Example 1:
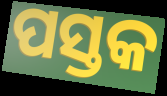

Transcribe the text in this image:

ପସ୍ତକ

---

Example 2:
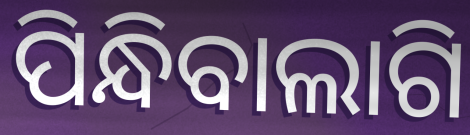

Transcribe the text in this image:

ପିନ୍ଧିବାଲାଗି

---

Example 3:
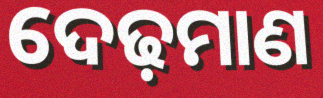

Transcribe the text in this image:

ଦେଢ଼ମାଣ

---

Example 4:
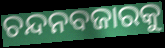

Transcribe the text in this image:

ଚନ୍ଦନବଜାରକୁ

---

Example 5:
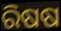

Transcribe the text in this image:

ରିଷଷ